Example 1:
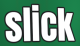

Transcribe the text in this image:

slick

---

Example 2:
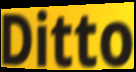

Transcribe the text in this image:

Ditto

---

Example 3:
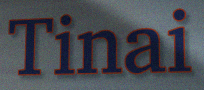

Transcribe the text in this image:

Tinai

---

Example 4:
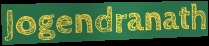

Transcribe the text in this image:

Jogendranath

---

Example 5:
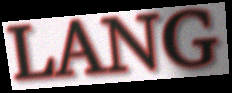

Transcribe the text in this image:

LANG